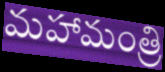
మహామంత్రి